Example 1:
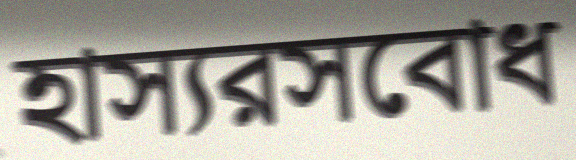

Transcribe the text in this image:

হাস্যরসবোধ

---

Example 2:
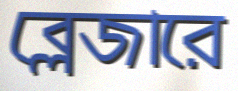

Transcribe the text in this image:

ব্লেজারে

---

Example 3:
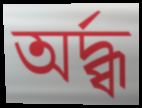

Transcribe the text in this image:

অর্দ্ধ্ব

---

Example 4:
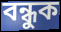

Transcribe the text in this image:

বন্ধুক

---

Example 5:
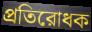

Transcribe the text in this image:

প্রতিরোধক